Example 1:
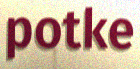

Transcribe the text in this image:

potke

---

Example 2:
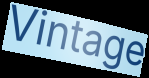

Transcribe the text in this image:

Vintage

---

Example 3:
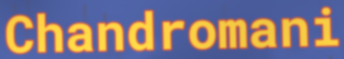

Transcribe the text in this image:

Chandromani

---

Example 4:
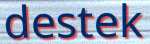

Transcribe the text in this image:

destek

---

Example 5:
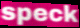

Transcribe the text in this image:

speck